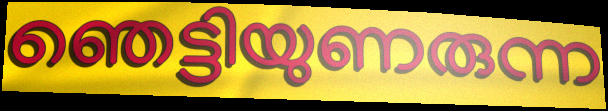
ഞെട്ടിയുണരുന്ന